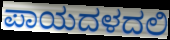
ಪಾಯದಳದಲಿ